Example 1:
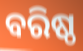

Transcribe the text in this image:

ବରିଷ୍ଠ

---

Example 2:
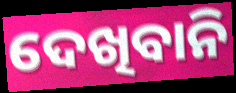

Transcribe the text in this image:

ଦେଖିବାନି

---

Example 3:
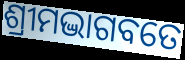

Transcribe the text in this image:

ଶ୍ରୀମଦ୍ଭାଗବତେ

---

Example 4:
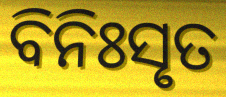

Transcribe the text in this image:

ବିନିଃସୃତ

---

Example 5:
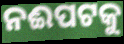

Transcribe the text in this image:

ନଈପଟକୁ